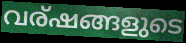
വര്ഷങ്ങളുടെ